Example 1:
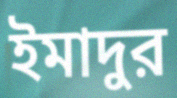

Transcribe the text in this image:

ইমাদুর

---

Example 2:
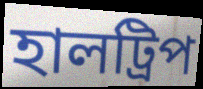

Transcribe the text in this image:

হালট্রিপ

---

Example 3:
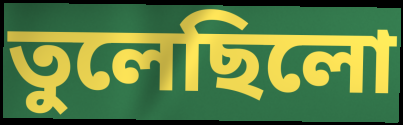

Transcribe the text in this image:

তুলেছিলো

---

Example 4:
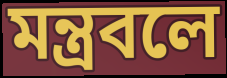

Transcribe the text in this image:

মন্ত্রবলে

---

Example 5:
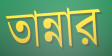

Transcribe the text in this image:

তান্নার